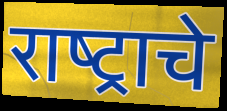
राष्ट्राचे